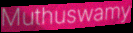
Muthuswamy